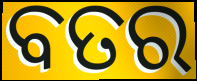
ବତର